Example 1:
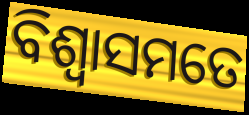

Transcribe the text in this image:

ବିଶ୍ୱାସମତେ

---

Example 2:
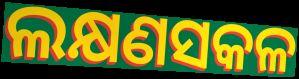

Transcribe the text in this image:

ଲକ୍ଷଣସକଳ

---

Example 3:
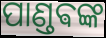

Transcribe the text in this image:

ପାଣ୍ଡଵଙ୍କ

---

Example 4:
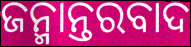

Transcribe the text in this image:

ଜନ୍ମାନ୍ତରବାଦ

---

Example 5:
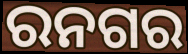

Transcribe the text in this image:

ରନଗର